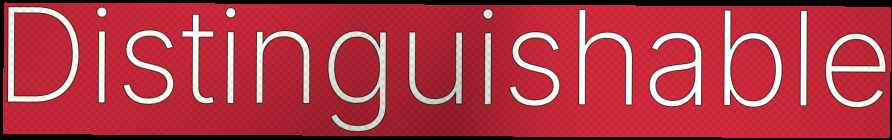
Distinguishable